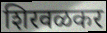
शिरवळकर